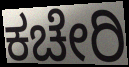
ಕಚೇರಿ